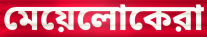
মেয়েলোকেরা